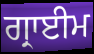
ਗ੍ਰਾਈਮ